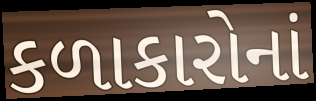
કળાકારોનાં